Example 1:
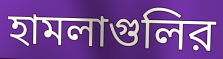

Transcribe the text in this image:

হামলাগুলির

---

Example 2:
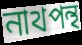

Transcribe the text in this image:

নাথপন্থ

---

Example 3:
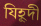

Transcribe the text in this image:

যিহূদী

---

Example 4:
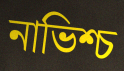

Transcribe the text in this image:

নাভিশ্চ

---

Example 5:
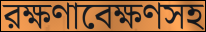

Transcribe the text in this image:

রক্ষণাবেক্ষণসহ